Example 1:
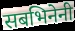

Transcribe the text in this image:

सबभिनेनी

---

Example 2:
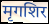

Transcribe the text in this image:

मृगशिर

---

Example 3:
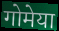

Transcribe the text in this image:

गोमेया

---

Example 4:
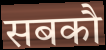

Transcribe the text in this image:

सबकौ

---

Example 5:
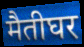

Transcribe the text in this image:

मैतीघर